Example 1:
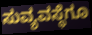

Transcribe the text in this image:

ಸುವ್ಯವಸ್ಥೆಗೂ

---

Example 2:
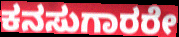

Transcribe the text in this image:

ಕನಸುಗಾರರೇ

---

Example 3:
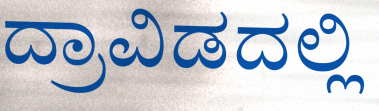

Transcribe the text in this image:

ದ್ರಾವಿಡದಲ್ಲಿ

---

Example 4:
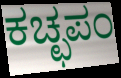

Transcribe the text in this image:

ಕಚ್ಛಪಂ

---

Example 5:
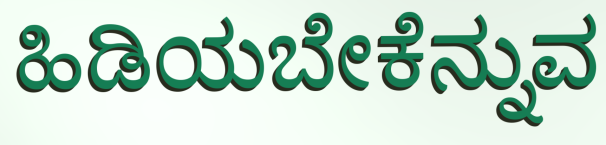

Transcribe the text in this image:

ಹಿಡಿಯಬೇಕೆನ್ನುವ